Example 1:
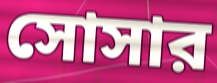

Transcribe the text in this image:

সোসার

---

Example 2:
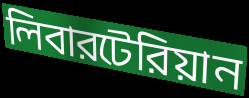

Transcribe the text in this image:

লিবারটেরিয়ান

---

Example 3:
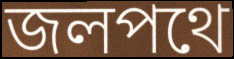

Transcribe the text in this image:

জলপথে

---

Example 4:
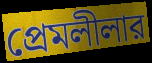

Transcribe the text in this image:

প্রেমলীলার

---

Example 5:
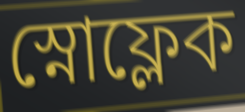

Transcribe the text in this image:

স্নোফ্লেক